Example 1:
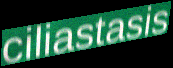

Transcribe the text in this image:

ciliastasis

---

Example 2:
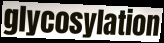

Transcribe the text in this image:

glycosylation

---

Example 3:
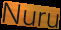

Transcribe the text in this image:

Nuru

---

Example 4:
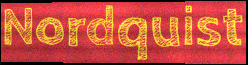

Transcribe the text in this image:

Nordquist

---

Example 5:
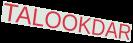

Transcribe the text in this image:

TALOOKDAR